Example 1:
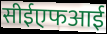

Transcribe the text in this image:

सीईएफआई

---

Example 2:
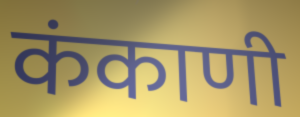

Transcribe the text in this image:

कंकाणी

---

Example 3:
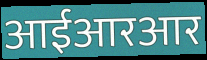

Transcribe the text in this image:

आईआरआर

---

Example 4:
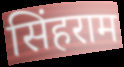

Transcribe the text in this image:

सिंहराम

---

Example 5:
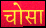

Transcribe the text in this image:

चोसा